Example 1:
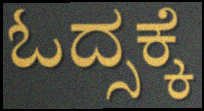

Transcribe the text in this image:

ಓದ್ಸಕ್ಕೆ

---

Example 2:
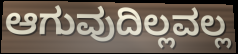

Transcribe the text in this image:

ಆಗುವುದಿಲ್ಲವಲ್ಲ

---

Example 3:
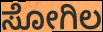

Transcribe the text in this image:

ಸೋಗಿಲ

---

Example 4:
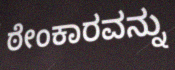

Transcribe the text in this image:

ಠೇಂಕಾರವನ್ನು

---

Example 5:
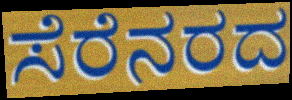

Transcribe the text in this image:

ಸೆರೆನರದ